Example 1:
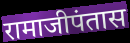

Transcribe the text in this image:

रामाजीपंतास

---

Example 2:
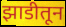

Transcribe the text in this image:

झाडीतून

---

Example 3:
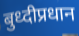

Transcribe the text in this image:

बुध्दीप्रधान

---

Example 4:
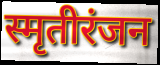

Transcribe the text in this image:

स्मृतीरंजन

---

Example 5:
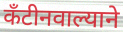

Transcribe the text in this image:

कँटीनवाल्याने